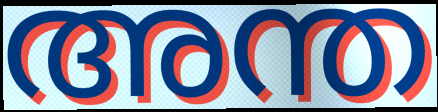
അന്ത